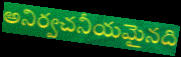
అనిర్వచనీయమైనది